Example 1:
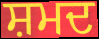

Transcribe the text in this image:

ਸ਼ਮਦ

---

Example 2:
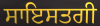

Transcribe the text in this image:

ਸਾਇਸਤਗੀ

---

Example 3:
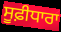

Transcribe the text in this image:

ਸੂਫ਼ੀਧਾਰਾ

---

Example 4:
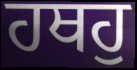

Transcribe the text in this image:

ਹਥਹੁ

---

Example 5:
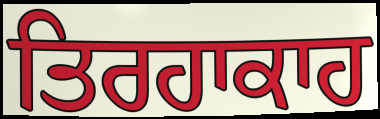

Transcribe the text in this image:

ਤਿਰਹਾਕਾਹ